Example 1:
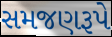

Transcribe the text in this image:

સમજણરૂપે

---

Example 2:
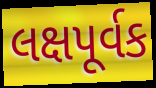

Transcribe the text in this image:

લક્ષપૂર્વક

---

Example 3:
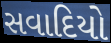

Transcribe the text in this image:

સવાદિયો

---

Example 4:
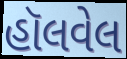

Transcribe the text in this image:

હૉલવેલ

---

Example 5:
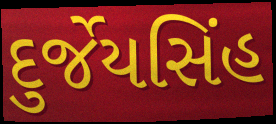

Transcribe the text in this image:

દુર્જેયસિંહ